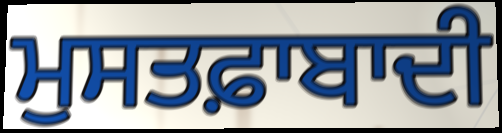
ਮੁਸਤਫ਼ਾਬਾਦੀ